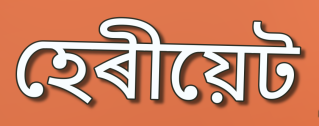
হেৰীয়েট